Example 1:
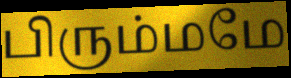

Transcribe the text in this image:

பிரும்மமே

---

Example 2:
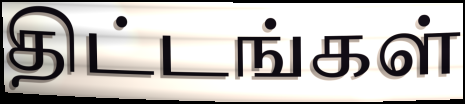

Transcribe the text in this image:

திட்டங்கள்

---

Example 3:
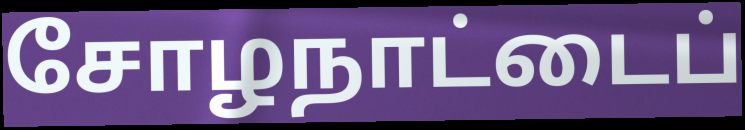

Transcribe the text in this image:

சோழநாட்டைப்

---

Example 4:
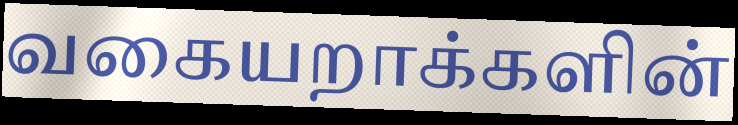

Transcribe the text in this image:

வகையறாக்களின்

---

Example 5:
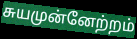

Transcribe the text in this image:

சுயமுன்னேற்றம்